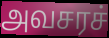
அவசரச்